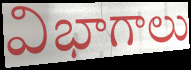
విభాగాలు